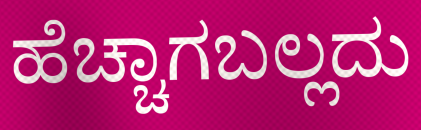
ಹೆಚ್ಚಾಗಬಲ್ಲದು